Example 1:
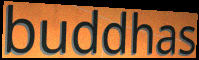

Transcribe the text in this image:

buddhas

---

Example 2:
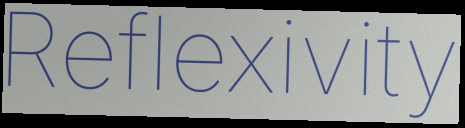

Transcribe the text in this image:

Reflexivity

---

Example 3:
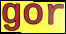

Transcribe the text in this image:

gor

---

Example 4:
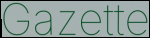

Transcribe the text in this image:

Gazette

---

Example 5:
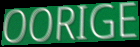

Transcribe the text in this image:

OORIGE